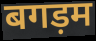
बगड़म